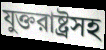
যুক্তরাষ্ট্রসহ